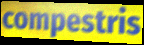
compestris